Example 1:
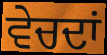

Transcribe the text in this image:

ਵੇਚਦਾਂ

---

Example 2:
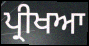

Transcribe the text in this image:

ਪ੍ਰੀਖਆ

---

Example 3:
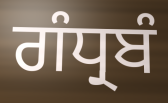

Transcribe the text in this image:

ਗੰਧ੍ਰਬੰ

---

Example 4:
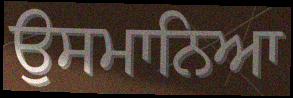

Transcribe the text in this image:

ਉਸਮਾਨਿਆ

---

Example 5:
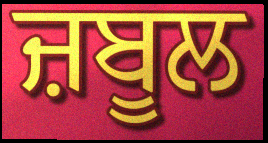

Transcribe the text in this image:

ਜ਼ਬੂਲ